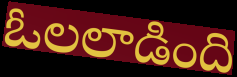
ఓలలాడింది